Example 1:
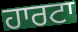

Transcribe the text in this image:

ਹਾਰਟਾ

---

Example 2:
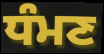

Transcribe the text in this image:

ਧੰਮਣ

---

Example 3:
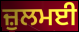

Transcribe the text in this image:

ਜ਼ੁਲਮਈ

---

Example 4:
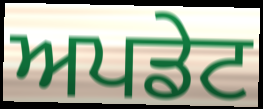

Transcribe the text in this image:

ਅਪਡੇਟ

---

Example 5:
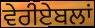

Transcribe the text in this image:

ਵੇਰੀਏਬਲਾਂ